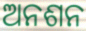
ଅନଶନ